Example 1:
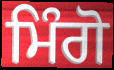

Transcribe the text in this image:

ਮਿੰਗੋ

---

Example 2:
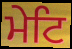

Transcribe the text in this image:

ਮੇਟਿ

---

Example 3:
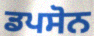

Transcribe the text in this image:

ਡਪਸੋਨ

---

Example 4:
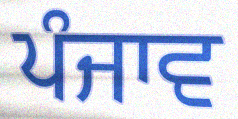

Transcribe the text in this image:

ਪੰਜਾਵ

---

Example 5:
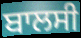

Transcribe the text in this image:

ਬਾਲਸੀ